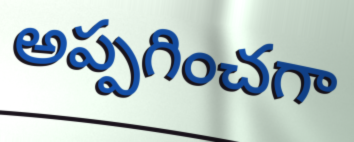
అప్పగించగా